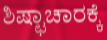
ಶಿಷ್ಟಾಚಾರಕ್ಕೆ